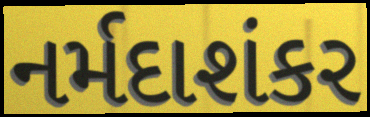
નર્મદાશંકર